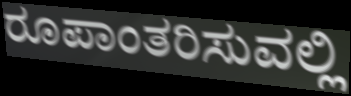
ರೂಪಾಂತರಿಸುವಲ್ಲಿ